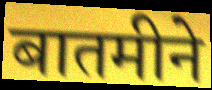
बातमीने